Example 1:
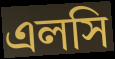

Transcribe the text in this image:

এলসি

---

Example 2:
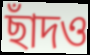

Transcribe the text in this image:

ছাঁদও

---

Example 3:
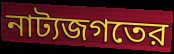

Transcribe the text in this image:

নাট্যজগতের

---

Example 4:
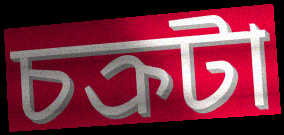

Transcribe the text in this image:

চক্রটা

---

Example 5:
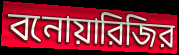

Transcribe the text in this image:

বনোয়ারিজির